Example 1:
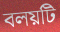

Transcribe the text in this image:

বলয়টি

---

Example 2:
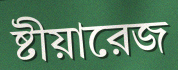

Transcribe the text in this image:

ষ্টীয়ারেজ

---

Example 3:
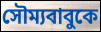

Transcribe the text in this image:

সৌম্যবাবুকে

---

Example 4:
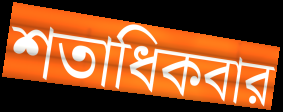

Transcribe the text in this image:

শতাধিকবার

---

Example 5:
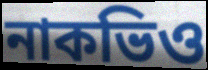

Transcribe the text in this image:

নাকভিও